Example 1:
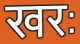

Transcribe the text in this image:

खरः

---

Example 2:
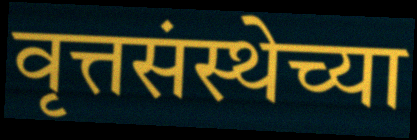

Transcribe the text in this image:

वृत्तसंस्थेच्या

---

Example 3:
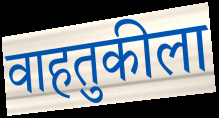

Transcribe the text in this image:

वाहतुकीला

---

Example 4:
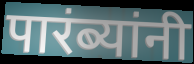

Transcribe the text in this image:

पारंब्यांनी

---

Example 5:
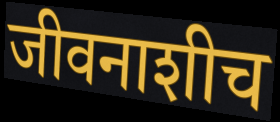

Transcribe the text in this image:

जीवनाशीच